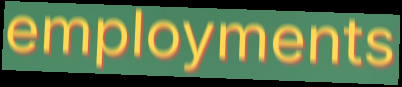
employments